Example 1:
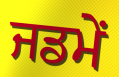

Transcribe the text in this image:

ਜਡਮੇਂ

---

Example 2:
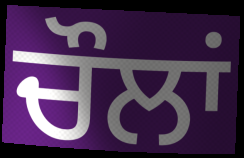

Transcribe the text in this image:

ਚੌਲਾਂ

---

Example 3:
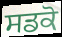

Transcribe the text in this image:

ਸਡਕੋ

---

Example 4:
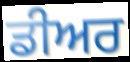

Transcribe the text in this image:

ਡੀਅਰ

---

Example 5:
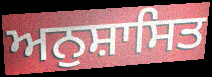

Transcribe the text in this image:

ਅਨੁਸ਼ਾਸਿਤ